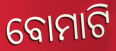
ବୋମାଟି